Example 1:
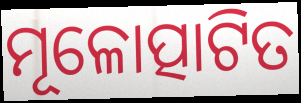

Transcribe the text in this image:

ମୂଳୋତ୍ପାଟିତ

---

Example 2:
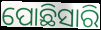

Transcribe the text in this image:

ପୋଛିସାରି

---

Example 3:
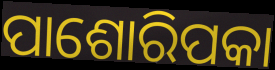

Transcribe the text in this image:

ପାଶୋରିପକା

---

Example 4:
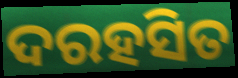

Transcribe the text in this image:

ଦରହସିତ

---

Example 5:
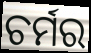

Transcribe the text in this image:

ଚର୍ମର